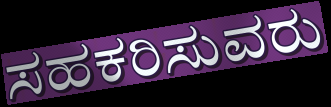
ಸಹಕರಿಸುವರು